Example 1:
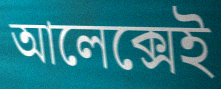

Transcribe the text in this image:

আলেক্সেই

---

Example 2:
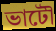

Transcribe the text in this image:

ভাটৌ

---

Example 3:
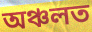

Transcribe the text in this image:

অঞ্চলত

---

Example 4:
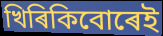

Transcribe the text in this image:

খিৰিকিবোৰেই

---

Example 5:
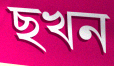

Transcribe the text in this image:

ছখন